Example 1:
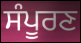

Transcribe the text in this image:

ਸੰਪੂਰਣ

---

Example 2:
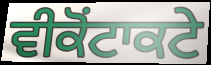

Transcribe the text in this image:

ਵੀਕੋਂਟਾਕਟੇ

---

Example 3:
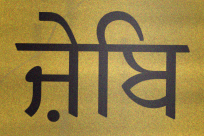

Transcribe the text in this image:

ਜ਼ੇਬਿ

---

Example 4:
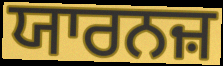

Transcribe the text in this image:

ਯਾਰਨਜ਼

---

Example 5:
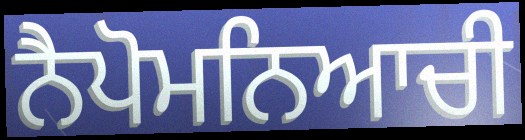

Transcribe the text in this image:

ਨੈਪੋਮਨਿਆਚੀ